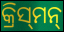
କ୍ରିସ୍‍ମନ୍